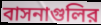
বাসনাগুলির